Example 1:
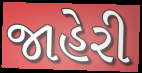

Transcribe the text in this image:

જાહેરી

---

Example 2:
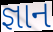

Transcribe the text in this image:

જ્ઞાન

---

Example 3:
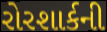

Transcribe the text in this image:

રોરશાર્કની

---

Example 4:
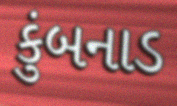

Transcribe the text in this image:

કુંબનાડ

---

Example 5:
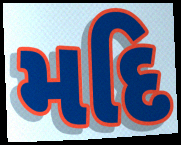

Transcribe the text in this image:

મદિ